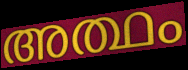
അത്ഥം